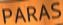
PARAS